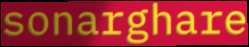
sonarghare